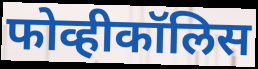
फोव्हीकॉलिस